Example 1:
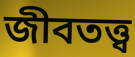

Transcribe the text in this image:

জীবতত্ত্ব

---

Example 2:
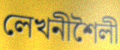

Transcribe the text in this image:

লেখনীশৈলী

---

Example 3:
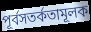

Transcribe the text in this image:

পূর্বসতর্কতামূলক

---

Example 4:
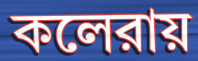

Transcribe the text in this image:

কলেরায়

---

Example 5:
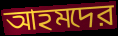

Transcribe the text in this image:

আহমদের